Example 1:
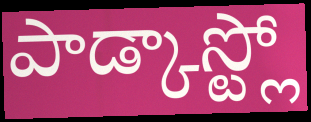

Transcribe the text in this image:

పాడ్కాస్ట్లో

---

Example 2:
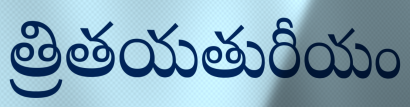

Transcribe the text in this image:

త్రితయతురీయం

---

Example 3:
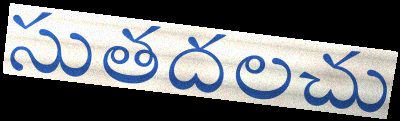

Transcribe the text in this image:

సుతదలచు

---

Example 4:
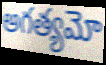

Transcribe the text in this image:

అగత్యమో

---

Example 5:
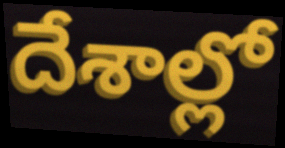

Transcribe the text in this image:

దేశాల్లో